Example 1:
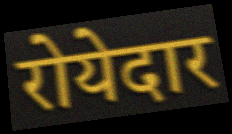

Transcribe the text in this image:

रोयेदार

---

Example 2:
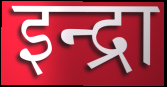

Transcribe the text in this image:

इन्द्रा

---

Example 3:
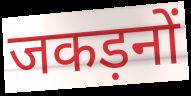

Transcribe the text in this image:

जकड़नों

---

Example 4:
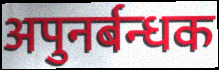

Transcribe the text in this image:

अपुनर्बन्धक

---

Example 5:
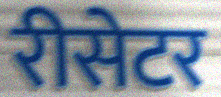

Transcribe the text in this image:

रीसेटर